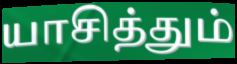
யாசித்தும்